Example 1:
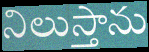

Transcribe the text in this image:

నిలుస్తాను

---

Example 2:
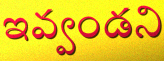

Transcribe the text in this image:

ఇవ్వండని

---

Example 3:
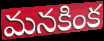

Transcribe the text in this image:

మనకింక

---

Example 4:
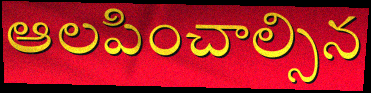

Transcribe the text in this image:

ఆలపించాల్సిన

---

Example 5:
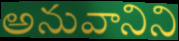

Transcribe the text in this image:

అనువానిని